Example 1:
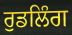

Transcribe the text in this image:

ਰੁਡਲਿੰਗ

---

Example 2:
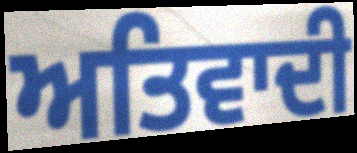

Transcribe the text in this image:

ਅਤਿਵਾਦੀ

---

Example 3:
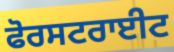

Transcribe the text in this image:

ਫੋਰਸਟਰਾਈਟ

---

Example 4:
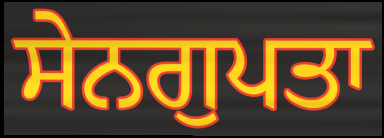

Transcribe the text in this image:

ਸੇਨਗੁਪਤਾ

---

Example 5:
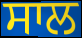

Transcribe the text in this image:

ਸਾਲ